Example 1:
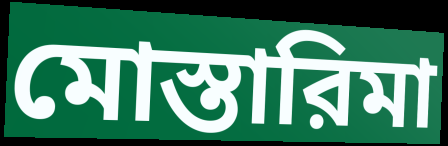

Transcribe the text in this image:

মোস্তারিমা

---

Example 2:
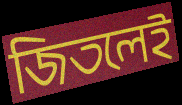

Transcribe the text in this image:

জিতলেই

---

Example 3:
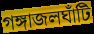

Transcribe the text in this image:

গঙ্গাজলঘাঁটি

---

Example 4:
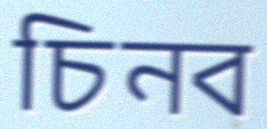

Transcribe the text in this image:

চিনব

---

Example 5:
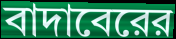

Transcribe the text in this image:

বাদাবেরের